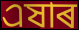
এষাৰ